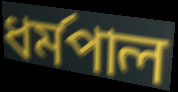
ধর্মপাল